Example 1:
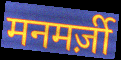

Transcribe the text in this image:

मनमर्ज़ी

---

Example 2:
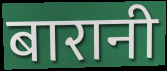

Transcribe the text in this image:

बारानी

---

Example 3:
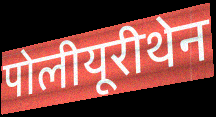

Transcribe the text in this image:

पोलीयूरीथेन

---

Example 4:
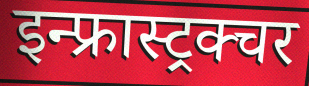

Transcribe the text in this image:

इन्फ्रास्ट्रक्चर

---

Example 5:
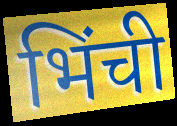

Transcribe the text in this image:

भिंची